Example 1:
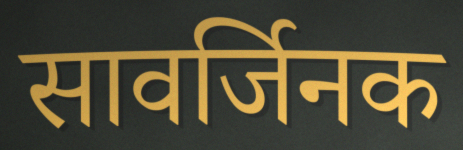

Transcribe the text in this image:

सावर्जिनक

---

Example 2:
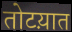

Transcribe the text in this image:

तोटय़ात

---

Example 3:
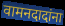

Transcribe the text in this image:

वामनदादांना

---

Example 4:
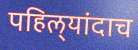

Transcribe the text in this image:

पहिल्यांदाच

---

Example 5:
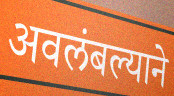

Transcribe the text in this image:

अवलंबल्याने